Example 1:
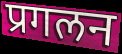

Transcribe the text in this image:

प्रगलन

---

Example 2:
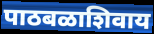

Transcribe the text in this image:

पाठबळाशिवाय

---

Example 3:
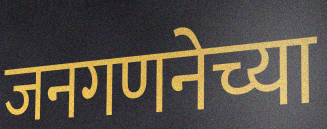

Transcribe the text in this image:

जनगणनेच्या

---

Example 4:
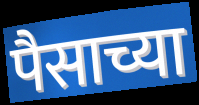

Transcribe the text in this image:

पैसाच्या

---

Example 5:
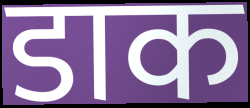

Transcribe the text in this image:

डाक